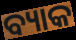
ବ୍ୟାକ